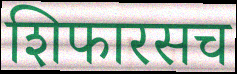
शिफारसच